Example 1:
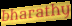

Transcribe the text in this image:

bharathy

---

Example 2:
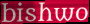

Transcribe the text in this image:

bishwo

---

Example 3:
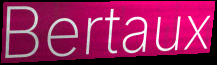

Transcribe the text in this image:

Bertaux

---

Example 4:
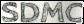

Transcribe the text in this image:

SDMC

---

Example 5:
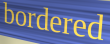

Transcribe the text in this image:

bordered